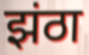
झंठा